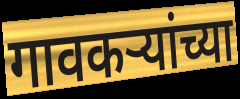
गावकर्‍यांच्या